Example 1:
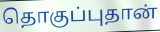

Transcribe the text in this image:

தொகுப்புதான்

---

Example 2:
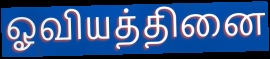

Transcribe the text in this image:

ஓவியத்தினை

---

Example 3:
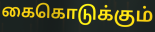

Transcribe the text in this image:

கைகொடுக்கும்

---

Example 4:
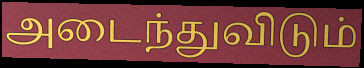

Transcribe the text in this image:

அடைந்துவிடும்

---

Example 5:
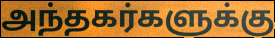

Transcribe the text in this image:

அந்தகர்களுக்கு